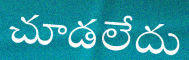
చూడలేదు